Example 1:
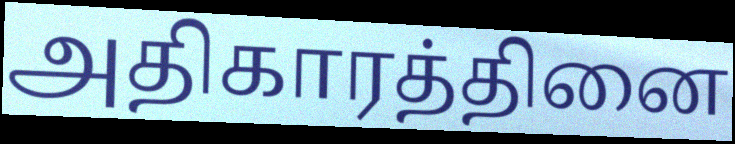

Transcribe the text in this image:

அதிகாரத்தினை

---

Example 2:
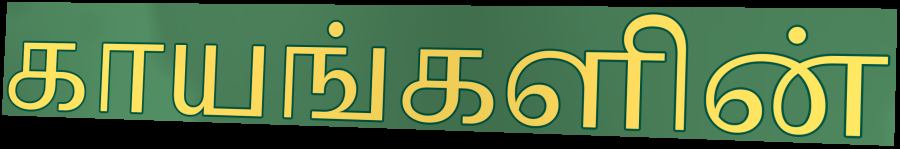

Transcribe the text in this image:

காயங்களின்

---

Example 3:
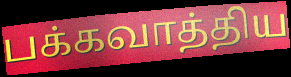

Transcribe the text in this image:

பக்கவாத்திய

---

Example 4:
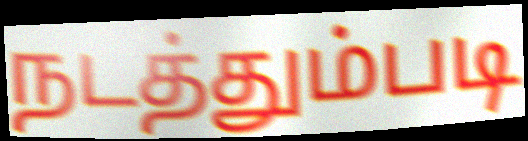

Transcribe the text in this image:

நடத்தும்படி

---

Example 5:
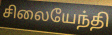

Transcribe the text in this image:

சிலையேந்தி